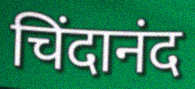
चिंदानंद